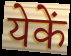
येकें